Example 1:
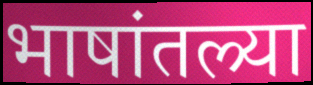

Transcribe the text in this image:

भाषांतल्या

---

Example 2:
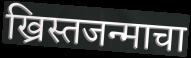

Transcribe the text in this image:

ख्रिस्तजन्माचा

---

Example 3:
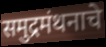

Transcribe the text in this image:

समुद्रमंथनाचे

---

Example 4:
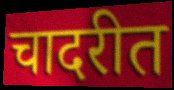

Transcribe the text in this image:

चादरीत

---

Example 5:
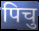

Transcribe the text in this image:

पिचु